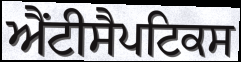
ਐਂਟੀਸੈਪਟਿਕਸ